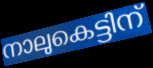
നാലുകെട്ടിന്